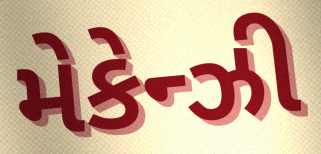
મેકેન્ઝી